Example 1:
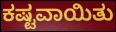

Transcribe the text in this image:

ಕಷ್ಟವಾಯಿತು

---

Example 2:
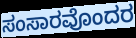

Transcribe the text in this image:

ಸಂಸಾರವೊಂದರ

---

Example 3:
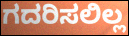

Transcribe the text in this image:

ಗದರಿಸಲಿಲ್ಲ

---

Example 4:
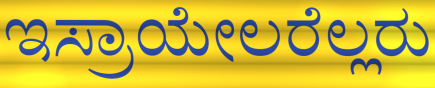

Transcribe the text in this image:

ಇಸ್ರಾಯೇಲರೆಲ್ಲರು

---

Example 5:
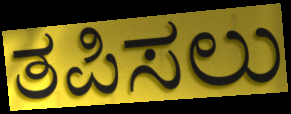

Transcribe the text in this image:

ತಪಿಸಲು